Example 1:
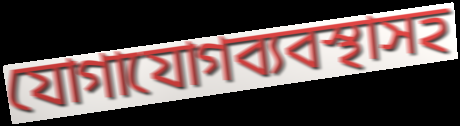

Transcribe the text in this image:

যোগাযোগব্যবস্থাসহ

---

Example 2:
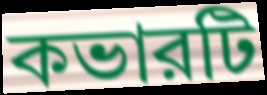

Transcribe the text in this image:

কভারটি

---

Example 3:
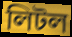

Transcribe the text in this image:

লিটল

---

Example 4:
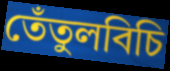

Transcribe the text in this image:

তেঁতুলবিচি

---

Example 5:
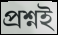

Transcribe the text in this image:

প্রশ্নই